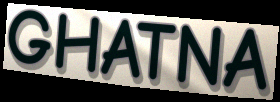
GHATNA